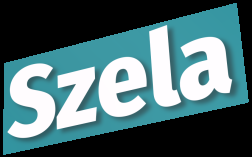
Szela